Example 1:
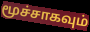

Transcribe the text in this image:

மூச்சாகவும்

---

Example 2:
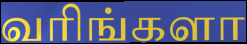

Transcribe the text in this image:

வரிங்களா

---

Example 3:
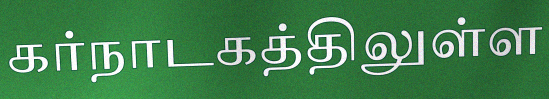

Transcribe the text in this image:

கர்நாடகத்திலுள்ள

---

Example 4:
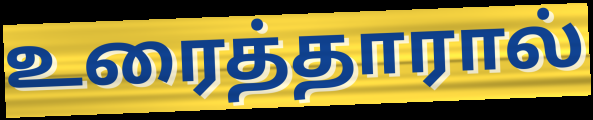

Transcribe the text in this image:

உரைத்தாரால்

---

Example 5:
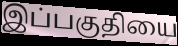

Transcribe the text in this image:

இப்பகுதியை